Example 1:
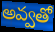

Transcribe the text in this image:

అవ్వతో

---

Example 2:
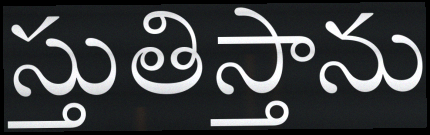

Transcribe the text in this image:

స్తుతిస్తాను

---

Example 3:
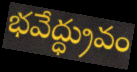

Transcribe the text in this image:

భవేద్ధ్రువం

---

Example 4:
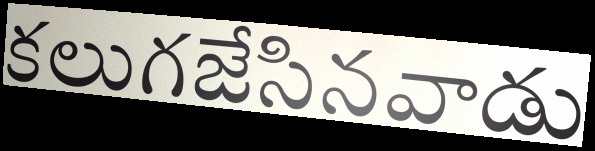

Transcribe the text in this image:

కలుగజేసినవాడు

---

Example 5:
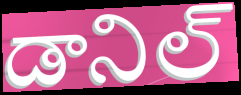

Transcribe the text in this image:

డానిల్